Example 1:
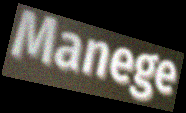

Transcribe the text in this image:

Manege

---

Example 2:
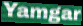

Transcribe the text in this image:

Yamgar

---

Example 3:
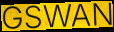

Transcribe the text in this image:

GSWAN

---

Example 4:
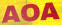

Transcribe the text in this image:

AOA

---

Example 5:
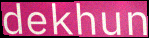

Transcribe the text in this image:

dekhun